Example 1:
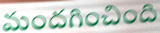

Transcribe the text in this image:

మందగించింది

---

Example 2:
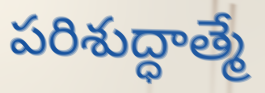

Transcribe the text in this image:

పరిశుద్ధాత్మే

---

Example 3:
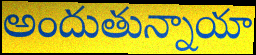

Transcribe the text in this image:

అందుతున్నాయా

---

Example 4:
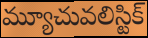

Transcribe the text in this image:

మ్యూచువలిస్టిక్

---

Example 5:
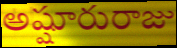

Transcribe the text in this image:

అష్షూరురాజు